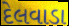
દેલવાડા